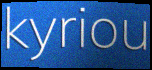
kyriou